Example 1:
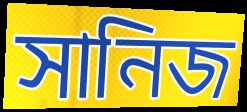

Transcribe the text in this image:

সানিজ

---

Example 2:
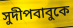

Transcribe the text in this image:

সুদীপবাবুকে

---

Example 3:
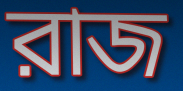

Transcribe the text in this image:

রাজ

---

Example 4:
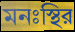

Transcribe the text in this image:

মনঃস্থির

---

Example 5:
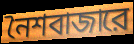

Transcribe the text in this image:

নৈশবাজারে